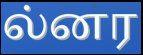
ல்னர